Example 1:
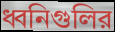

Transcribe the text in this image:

ধ্বনিগুলির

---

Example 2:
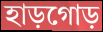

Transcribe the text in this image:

হাড়গোড়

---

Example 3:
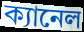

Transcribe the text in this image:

ক্যানেল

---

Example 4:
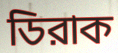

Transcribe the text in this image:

ডিরাক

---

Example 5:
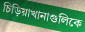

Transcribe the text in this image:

চিড়িয়াখানাগুলিকে